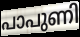
പാപുണി